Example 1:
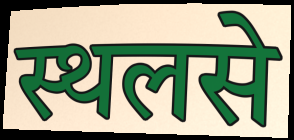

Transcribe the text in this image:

स्थलसे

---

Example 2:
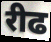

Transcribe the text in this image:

रीढ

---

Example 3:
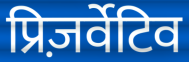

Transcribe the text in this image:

प्रिज़र्वेटिव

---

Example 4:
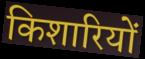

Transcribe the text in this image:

किशारियों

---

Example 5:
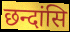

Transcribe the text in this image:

छन्दांसि